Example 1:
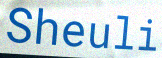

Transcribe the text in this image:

Sheuli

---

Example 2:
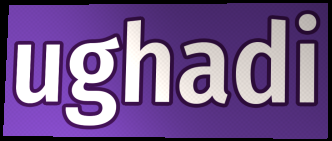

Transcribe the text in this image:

ughadi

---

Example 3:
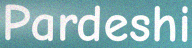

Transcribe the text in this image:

Pardeshi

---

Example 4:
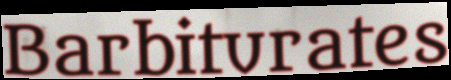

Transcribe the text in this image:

Barbiturates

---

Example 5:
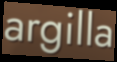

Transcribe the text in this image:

argilla